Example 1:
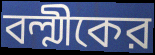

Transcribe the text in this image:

বল্মীকের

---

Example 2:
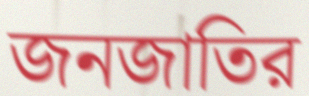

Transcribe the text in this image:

জনজাতির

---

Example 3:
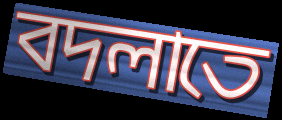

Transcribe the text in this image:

বদলাতে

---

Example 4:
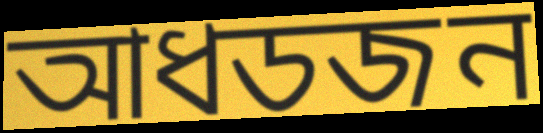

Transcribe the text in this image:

আধডজন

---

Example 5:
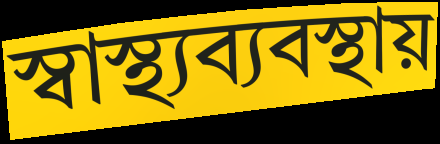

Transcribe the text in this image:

স্বাস্থ্যব্যবস্থায়